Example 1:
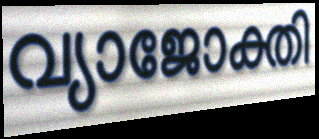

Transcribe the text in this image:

വ്യാജോക്തി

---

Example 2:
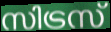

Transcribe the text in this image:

സിട്രസ്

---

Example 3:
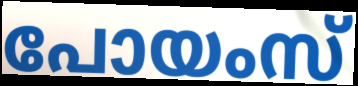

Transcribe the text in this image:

പോയംസ്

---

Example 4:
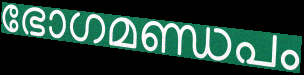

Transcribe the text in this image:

ഭോഗമണ്ഡപം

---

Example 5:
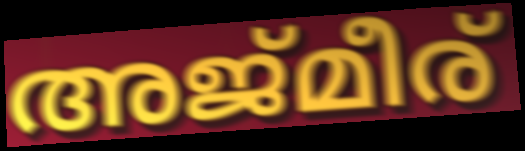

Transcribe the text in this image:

അജ്മീര്